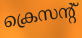
ക്രെസന്റ്